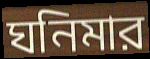
ঘনিমার